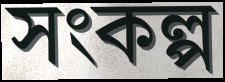
সংকল্প